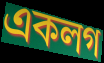
একলগ